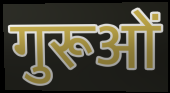
गुरूओं